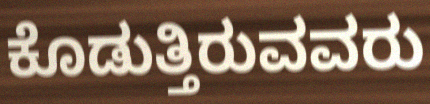
ಕೊಡುತ್ತಿರುವವರು